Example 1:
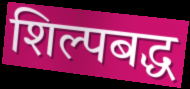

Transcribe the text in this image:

शिल्पबद्ध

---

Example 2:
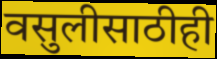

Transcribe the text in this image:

वसुलीसाठीही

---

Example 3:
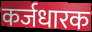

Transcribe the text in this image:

कर्जधारक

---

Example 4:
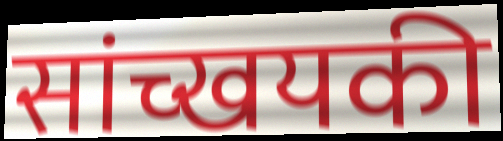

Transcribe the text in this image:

सांच्खयकी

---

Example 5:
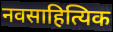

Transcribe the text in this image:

नवसाहित्यिक